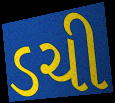
ડચી